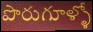
పొరుగూళ్ళో